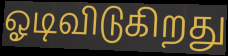
ஓடிவிடுகிறது